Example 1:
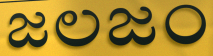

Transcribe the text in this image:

జలజం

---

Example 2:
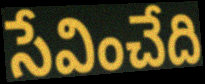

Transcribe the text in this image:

సేవించేది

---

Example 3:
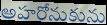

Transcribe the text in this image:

అహరోనుకును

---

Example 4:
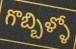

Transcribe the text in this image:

గొబ్బిళ్ళో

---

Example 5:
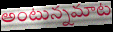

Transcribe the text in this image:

అంటున్నమాట